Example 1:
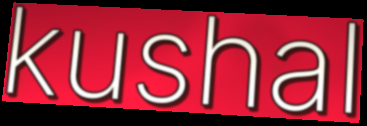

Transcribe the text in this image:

kushal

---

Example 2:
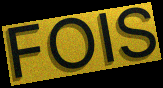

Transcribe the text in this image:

FOIS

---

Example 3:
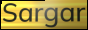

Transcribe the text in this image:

Sargar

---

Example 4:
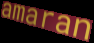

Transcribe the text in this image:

amaran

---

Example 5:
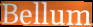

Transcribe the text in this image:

Bellum